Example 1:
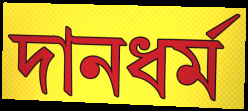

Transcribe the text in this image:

দানধর্ম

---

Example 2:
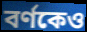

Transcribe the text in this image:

বর্ণকেও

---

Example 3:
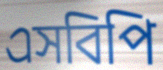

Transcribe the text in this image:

এসবিপি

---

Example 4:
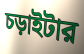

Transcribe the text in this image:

চড়াইটার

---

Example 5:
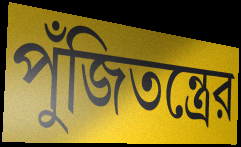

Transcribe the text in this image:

পুঁজিতন্ত্রের